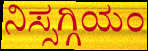
ನಿಸ್ಸಗ್ಗಿಯಂ